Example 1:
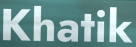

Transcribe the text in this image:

Khatik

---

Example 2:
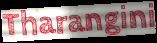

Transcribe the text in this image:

Tharangini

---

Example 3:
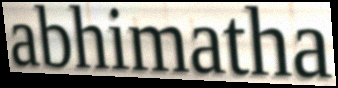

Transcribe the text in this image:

abhimatha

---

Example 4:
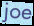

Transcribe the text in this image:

joe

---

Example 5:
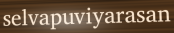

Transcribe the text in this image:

selvapuviyarasan